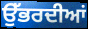
ਉੱਭਰਦੀਆਂ